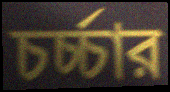
চর্চ্চার